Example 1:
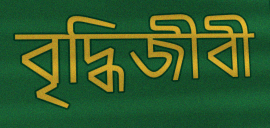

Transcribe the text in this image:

বৃদ্ধিজীবী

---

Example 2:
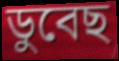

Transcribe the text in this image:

ডুবেছ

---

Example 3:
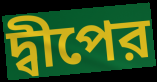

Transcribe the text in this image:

দ্বীপের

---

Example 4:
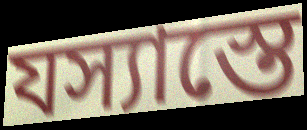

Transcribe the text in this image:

যস্যাস্তে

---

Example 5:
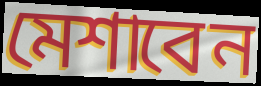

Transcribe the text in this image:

মেশাবেন